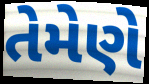
તેમેણે